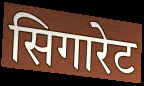
सिगारेट